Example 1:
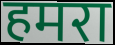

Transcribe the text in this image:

हमरा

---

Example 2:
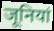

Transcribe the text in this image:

जूनियां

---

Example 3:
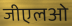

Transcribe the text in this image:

जीएलओ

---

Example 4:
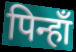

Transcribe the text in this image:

पिन्हाँ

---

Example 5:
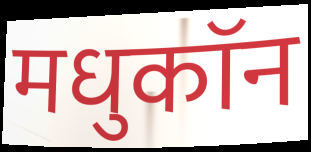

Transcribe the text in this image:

मधुकॉन